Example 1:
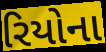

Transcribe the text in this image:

રિયોના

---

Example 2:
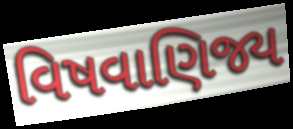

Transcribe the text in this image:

વિષવાણિજ્ય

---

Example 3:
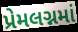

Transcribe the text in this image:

પ્રેમલગ્નમાં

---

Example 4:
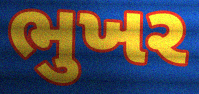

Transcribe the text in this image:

ભુખર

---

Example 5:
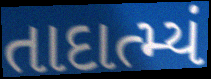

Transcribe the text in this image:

તાદાત્મ્યં